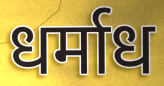
धर्माध